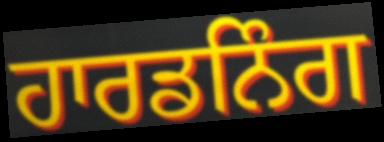
ਹਾਰਡਨਿੰਗ